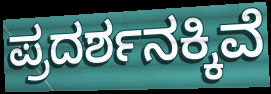
ಪ್ರದರ್ಶನಕ್ಕಿವೆ